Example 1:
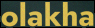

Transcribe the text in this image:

olakha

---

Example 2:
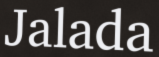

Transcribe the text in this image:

Jalada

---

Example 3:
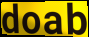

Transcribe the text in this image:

doab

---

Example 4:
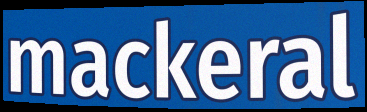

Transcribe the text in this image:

mackeral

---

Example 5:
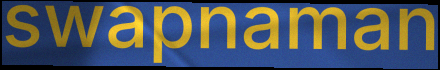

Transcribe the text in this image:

swapnaman